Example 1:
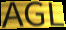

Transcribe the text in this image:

AGL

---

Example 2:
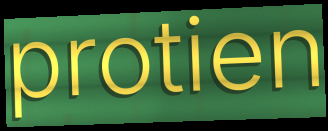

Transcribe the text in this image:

protien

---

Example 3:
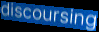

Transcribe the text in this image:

discoursing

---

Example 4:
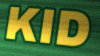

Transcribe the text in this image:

KID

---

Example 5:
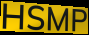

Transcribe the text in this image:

HSMP